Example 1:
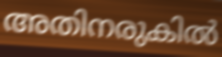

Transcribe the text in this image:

അതിനരുകിൽ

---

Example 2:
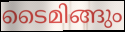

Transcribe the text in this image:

ടൈമിങ്ങും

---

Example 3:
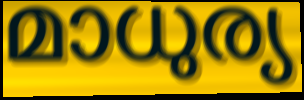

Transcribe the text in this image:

മാധുര്യ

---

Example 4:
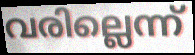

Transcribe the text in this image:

വരില്ലെന്ന്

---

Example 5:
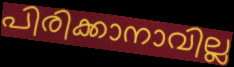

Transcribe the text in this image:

പിരിക്കാനാവില്ല